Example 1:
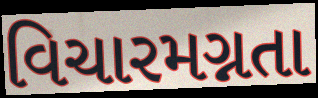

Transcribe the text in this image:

વિચારમગ્નતા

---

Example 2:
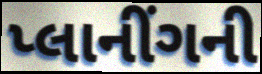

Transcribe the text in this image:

પ્લાનીંગની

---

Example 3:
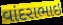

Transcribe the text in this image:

વાંદરાભાઇ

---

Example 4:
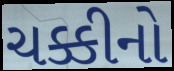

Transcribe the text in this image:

ચક્કીનો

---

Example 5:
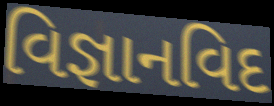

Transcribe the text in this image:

વિજ્ઞાનવિદ